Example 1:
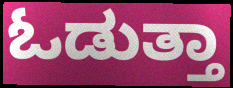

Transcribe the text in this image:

ಓಡುತ್ತಾ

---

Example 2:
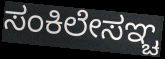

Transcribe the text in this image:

ಸಂಕಿಲೇಸಞ್ಚ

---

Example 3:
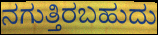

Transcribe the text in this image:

ನಗುತ್ತಿರಬಹುದು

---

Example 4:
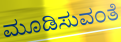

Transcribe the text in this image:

ಮೂಡಿಸುವಂತೆ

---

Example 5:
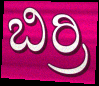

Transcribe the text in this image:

ಬಿರ್ರಿ